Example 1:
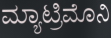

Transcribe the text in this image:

ಮ್ಯಾಟ್ರಿಮೊನಿ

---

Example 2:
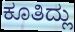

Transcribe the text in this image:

ಕೂತಿದ್ಲು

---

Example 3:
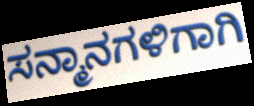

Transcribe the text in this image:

ಸನ್ಮಾನಗಳಿಗಾಗಿ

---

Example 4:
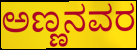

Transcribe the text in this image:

ಅಣ್ಣನವರ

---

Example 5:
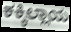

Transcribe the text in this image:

ಕಕ್ಕಿಲ್ಲಾಯ